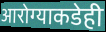
आरोग्याकडेही